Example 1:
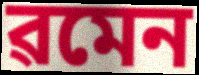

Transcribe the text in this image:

ৱমেন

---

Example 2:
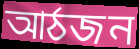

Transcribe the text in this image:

আঠজন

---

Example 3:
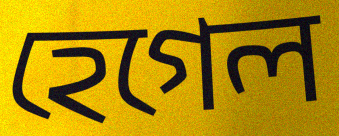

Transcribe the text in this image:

হেগেল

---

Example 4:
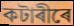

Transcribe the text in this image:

কটাৰীৰে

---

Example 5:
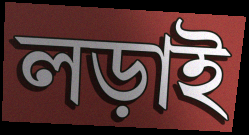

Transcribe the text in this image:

লড়াই